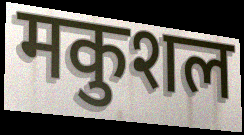
मकुशल